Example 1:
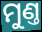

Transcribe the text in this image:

ମୁଣ୍ତ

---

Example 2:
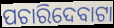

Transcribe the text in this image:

ପଚାରିଦେବାଟା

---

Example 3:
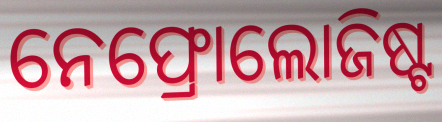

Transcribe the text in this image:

ନେଫ୍ରୋଲୋଜିଷ୍ଟ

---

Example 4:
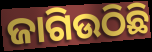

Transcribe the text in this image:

ଜାଗିଉଠିଛି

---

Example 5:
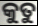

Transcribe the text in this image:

କୁତୁ